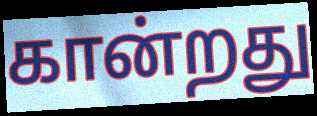
கான்றது